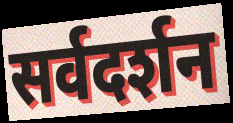
सर्वदर्शन